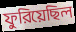
ফুরিয়েছিল